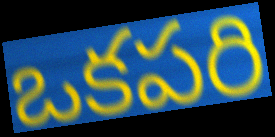
ఒకపరి